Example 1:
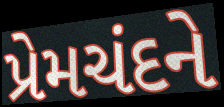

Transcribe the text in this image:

પ્રેમચંદને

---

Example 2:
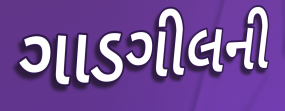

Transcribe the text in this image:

ગાડગીલની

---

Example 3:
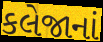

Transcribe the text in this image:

કલેજાનાં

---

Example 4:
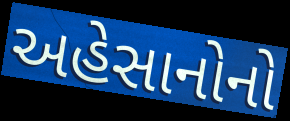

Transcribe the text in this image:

અહેસાનોનો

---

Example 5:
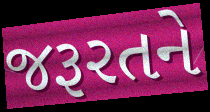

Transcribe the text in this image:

જરૂરતને